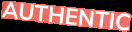
AUTHENTIC